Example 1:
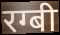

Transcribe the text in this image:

रग्बी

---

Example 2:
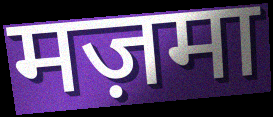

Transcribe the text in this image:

मज़मा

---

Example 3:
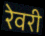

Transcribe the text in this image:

रेवरी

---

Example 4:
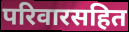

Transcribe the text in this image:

परिवारसहित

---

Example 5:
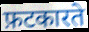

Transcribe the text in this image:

फ़टकारते